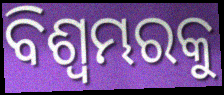
ବିଶ୍ୱମ୍ଭରକୁ